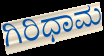
ಗಿರಿಧಾಮ